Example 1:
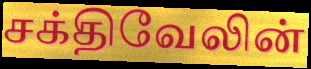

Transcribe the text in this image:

சக்திவேலின்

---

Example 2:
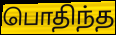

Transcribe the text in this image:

பொதிந்த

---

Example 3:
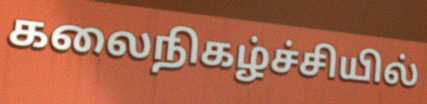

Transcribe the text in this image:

கலைநிகழ்ச்சியில்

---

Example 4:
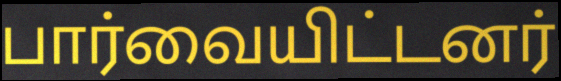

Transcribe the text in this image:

பார்வையிட்டனர்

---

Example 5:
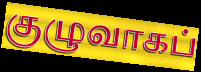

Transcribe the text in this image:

குழுவாகப்